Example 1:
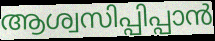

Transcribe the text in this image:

ആശ്വസിപ്പിപ്പാൻ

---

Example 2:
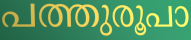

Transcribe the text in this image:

പത്തുരൂപാ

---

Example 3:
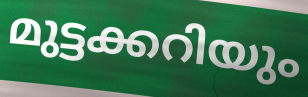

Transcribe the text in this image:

മുട്ടക്കറിയും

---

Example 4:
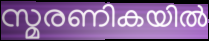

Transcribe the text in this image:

സ്മരണികയിൽ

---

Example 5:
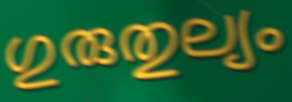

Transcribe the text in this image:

ഗുരുതുല്യം